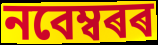
নবেম্বৰৰ